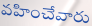
వహించేవారు